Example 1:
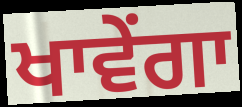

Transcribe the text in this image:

ਖਾਵੇਂਗਾ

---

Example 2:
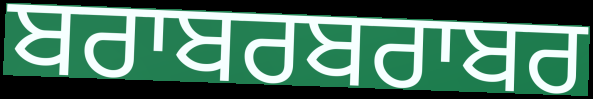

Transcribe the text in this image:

ਬਰਾਬਰਬਰਾਬਰ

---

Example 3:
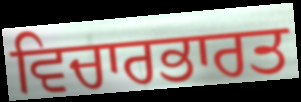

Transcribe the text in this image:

ਵਿਚਾਰਭਾਰਤ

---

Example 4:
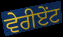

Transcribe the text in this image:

ਵੇਰੀਏਂਟ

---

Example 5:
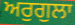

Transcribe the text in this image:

ਅਰੁਗੁਲਾ